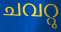
ചവറ്റു